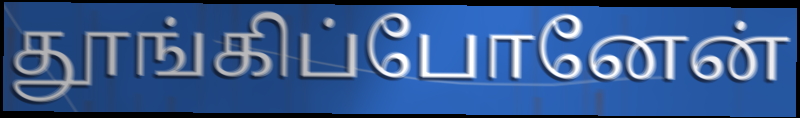
தூங்கிப்போனேன்